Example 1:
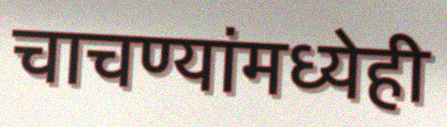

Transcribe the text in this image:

चाचण्यांमध्येही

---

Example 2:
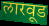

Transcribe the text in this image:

लारवूड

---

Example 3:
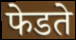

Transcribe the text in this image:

फेडते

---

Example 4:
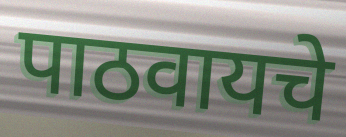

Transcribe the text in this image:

पाठवायचे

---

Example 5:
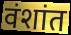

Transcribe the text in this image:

वंशांत